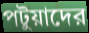
পটুয়াদের